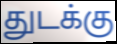
துடக்கு